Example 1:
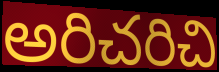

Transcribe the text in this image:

అరిచరిచి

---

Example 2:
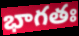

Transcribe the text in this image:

భాగతః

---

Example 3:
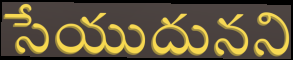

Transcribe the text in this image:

సేయుదునని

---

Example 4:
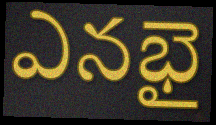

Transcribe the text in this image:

ఎనభై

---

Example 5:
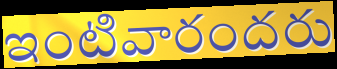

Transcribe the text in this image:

ఇంటివారందరు